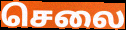
செலை